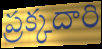
ప్రక్కదారి